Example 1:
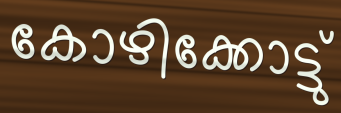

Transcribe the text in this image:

കോഴിക്കോട്ടു്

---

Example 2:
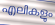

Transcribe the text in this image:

എലികളും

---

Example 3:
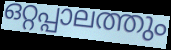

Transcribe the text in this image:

ഒറ്റപ്പാലത്തും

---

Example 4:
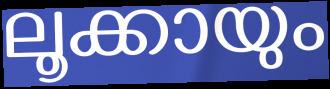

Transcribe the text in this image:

ലൂക്കായും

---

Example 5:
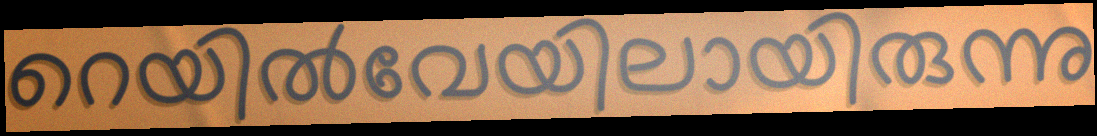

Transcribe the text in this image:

റെയിൽവേയിലായിരുന്നു